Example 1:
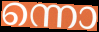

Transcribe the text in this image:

ന്നൊ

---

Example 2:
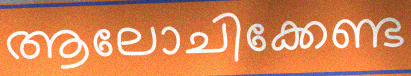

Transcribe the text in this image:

ആലോചിക്കേണ്ട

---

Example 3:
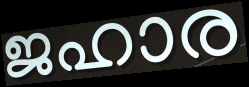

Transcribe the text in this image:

ജഹാര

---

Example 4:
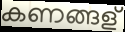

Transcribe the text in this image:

കണങ്ങള്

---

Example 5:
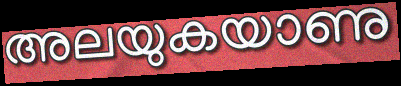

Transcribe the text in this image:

അലയുകയാണു